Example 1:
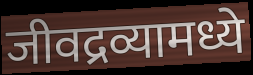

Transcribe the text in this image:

जीवद्रव्यामध्ये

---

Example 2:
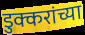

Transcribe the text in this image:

डुक्करांच्या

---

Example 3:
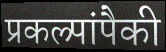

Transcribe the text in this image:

प्रकल्पांपैकी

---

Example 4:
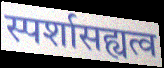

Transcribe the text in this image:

स्पर्शासह्यत्व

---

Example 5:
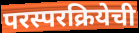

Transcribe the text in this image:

परस्परक्रियेची